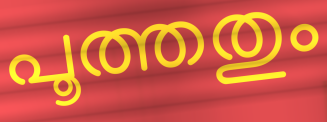
പൂത്തതും